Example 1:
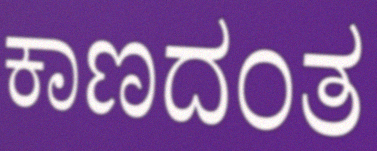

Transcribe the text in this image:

ಕಾಣದಂತ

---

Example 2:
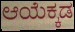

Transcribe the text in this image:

ಆಯೆಕ್ಕಡ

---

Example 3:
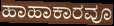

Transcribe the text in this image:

ಹಾಹಾಕಾರವೂ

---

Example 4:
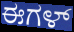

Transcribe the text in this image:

ಈಗಳ್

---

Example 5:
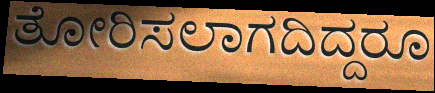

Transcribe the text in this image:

ತೋರಿಸಲಾಗದಿದ್ದರೂ